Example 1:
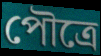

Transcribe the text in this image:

পৌত্রে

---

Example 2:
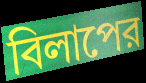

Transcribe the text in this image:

বিলাপের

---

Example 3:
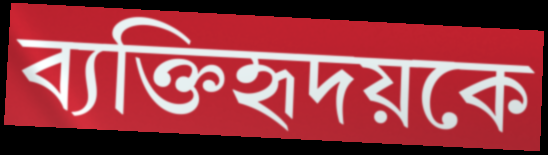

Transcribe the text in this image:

ব্যক্তিহৃদয়কে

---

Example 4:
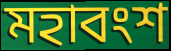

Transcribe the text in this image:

মহাবংশ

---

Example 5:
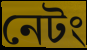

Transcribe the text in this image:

নেটং